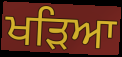
ਖੜਿਆ